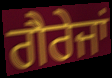
ਗੈਰੇਜਾਂ